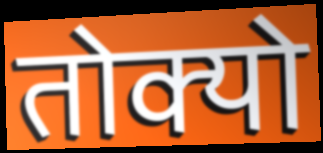
तोक्यो